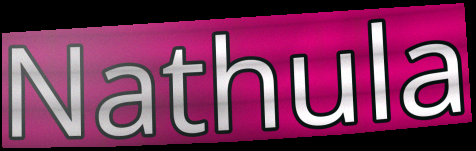
Nathula